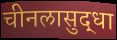
चीनलासुद्धा